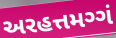
અરહત્તમગ્ગં